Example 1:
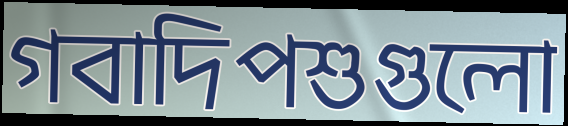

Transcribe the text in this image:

গবাদিপশুগুলো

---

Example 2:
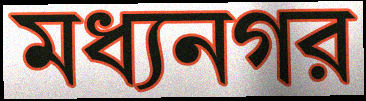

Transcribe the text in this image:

মধ্যনগর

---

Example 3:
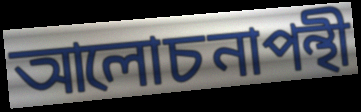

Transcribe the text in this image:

আলোচনাপন্থী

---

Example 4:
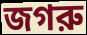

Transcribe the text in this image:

জগরু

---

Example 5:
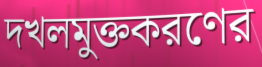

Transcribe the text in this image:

দখলমুক্তকরণের